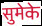
सुमेके